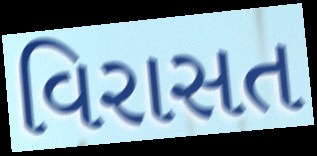
વિરાસત